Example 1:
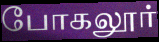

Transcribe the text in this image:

போகலூர்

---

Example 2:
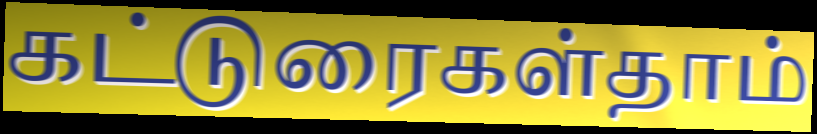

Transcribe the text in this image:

கட்டுரைகள்தாம்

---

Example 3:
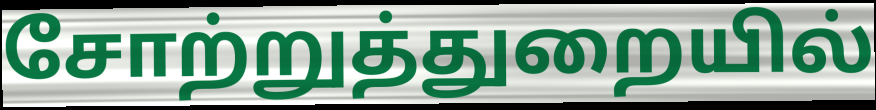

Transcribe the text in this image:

சோற்றுத்துறையில்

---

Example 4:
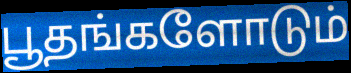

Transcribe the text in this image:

பூதங்களோடும்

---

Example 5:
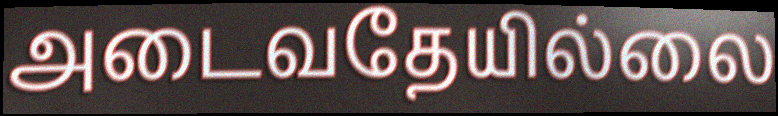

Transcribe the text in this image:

அடைவதேயில்லை